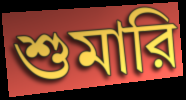
শুমারি